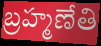
బ్రహ్మణేతి